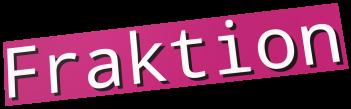
Fraktion